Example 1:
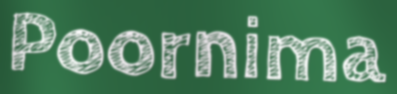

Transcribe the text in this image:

Poornima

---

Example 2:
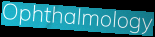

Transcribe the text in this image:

Ophthalmology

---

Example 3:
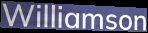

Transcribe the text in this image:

Williamson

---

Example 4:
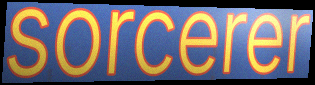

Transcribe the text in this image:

sorcerer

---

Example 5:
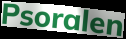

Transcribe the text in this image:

Psoralen